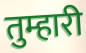
तुम्‍हारी